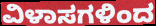
ವಿಳಾಸಗಳಿಂದ